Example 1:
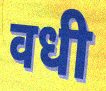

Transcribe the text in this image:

वधी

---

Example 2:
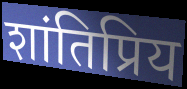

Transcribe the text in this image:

शांतिप्रिय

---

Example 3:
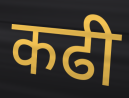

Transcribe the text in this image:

कढी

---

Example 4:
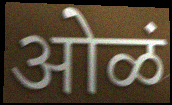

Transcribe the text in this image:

ओळं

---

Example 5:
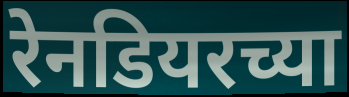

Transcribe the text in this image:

रेनडियरच्या